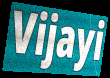
Vijayi